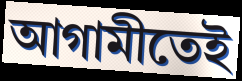
আগামীতেই